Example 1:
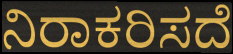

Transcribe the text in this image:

ನಿರಾಕರಿಸದೆ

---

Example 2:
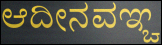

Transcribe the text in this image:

ಆದೀನವಞ್ಚ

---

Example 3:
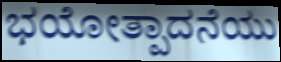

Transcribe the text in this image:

ಭಯೋತ್ಪಾದನೆಯು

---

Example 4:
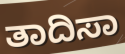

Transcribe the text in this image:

ತಾದಿಸಾ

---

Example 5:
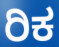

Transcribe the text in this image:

ರಿಕ